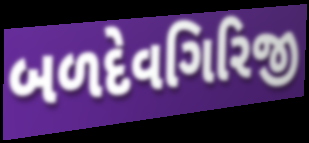
બળદેવગિરિજી